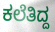
ಕಲೆತಿದ್ದ